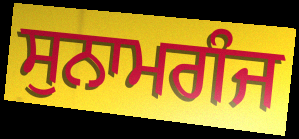
ਸੁਨਾਮਗੰਜ